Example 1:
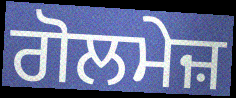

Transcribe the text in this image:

ਗੋਲਮੇਜ਼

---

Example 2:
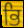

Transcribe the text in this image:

ਭਿ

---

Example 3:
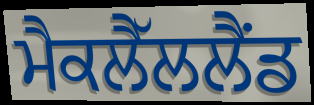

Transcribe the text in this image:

ਮੈਕਲੈੱਲਲੈਂਡ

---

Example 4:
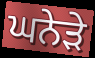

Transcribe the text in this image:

ਘਨੇੜੇ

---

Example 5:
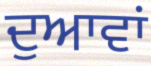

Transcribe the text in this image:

ਦੁਆਵਾਂ